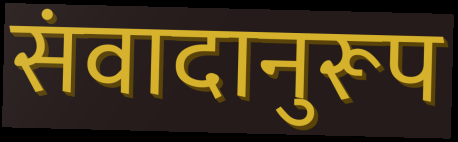
संवादानुरूप